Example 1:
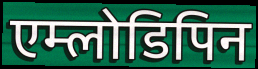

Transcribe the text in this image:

एम्लोडिपिन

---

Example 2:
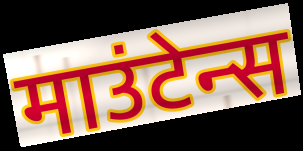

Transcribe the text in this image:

माउंटेन्स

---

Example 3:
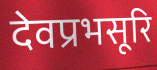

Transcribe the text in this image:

देवप्रभसूरि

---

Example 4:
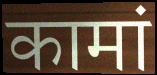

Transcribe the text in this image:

कामां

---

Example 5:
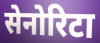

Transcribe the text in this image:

सेनोरिटा